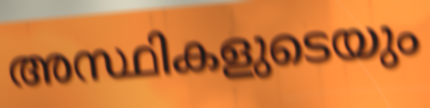
അസ്ഥികളുടെയും